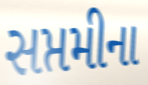
સપ્તમીના